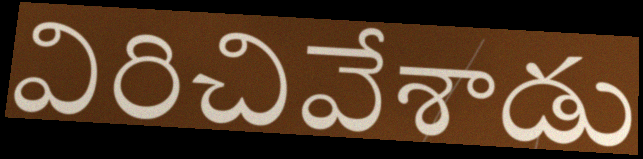
విరిచివేశాడు